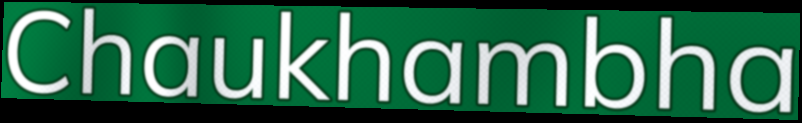
Chaukhambha